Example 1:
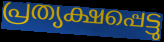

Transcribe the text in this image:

പ്രത്യക്ഷപ്പെട്ടു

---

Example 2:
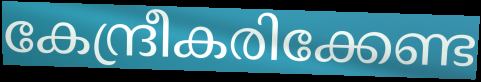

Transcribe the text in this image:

കേന്ദ്രീകരിക്കേണ്ട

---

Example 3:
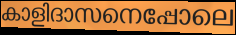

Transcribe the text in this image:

കാളിദാസനെപ്പോലെ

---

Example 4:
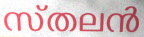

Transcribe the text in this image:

സ്‌തലൻ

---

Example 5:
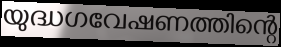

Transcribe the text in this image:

യുദ്ധഗവേഷണത്തിന്റെ